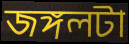
জঙ্গলটা